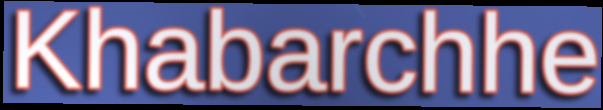
Khabarchhe